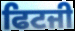
ਫਿਟਜੀ